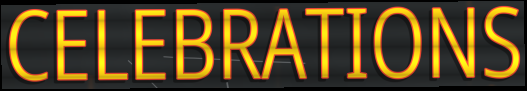
CELEBRATIONS